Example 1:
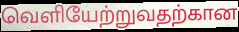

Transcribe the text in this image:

வெளியேற்றுவதற்கான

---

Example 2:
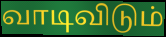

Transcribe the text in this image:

வாடிவிடும்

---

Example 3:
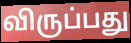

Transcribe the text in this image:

விருப்பது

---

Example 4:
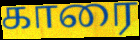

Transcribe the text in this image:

காரை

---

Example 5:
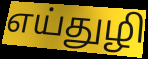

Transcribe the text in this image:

எய்துழி